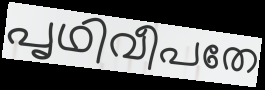
പൃഥിവീപതേ